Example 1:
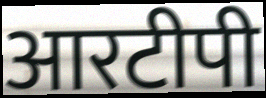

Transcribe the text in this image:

आरटीपी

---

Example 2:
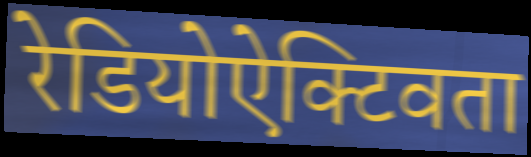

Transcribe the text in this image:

रेडियोऐक्टिवता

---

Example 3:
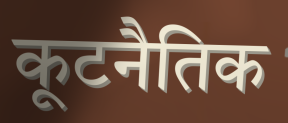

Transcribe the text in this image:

कूटनैतिक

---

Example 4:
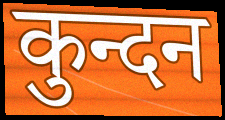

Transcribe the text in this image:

कुन्दन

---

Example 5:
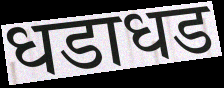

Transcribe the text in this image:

धडाधड